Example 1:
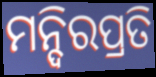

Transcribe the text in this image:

ମନ୍ଦିରପ୍ରତି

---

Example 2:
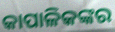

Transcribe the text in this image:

କାପାଳିକଙ୍କର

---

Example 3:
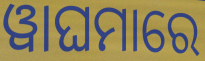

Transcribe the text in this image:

ୱାଘମାରେ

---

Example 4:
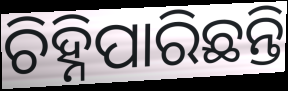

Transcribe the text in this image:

ଚିହ୍ନିପାରିଛନ୍ତି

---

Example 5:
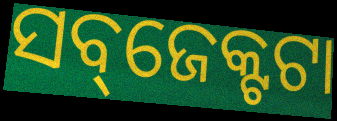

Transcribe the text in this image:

ସବ୍‌ଜେକ୍ଟଟା